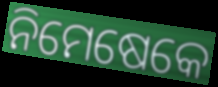
ନିମେଷେକେ